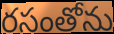
రసంతోను